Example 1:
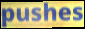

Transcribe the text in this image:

pushes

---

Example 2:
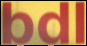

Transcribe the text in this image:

bdl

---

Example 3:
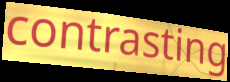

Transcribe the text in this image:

contrasting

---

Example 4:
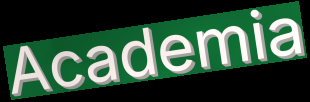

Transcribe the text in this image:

Academia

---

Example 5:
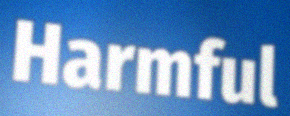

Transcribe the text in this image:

Harmful